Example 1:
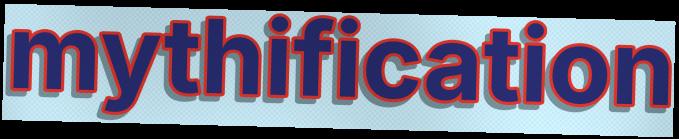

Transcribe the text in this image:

mythification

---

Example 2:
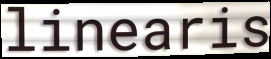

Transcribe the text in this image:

linearis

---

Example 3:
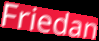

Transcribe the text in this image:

Friedan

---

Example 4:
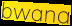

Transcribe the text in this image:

bwana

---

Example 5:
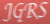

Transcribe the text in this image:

JGRS